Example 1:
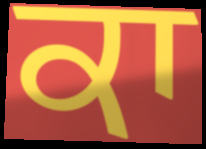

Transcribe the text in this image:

ਕਾ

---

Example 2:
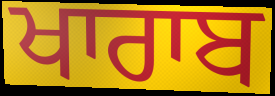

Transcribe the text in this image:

ਖਾਰਾਬ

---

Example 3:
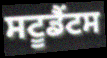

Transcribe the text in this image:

ਸਟੂਡੈਂਟਸ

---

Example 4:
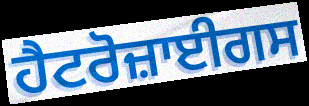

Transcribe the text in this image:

ਹੈਟਰੋਜ਼ਾਈਗਸ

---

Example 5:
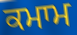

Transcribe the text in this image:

ਕਮਾਮ